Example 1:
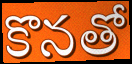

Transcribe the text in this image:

కొనతో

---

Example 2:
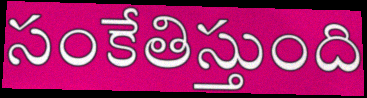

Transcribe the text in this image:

సంకేతిస్తుంది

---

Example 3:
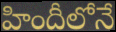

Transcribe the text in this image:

హిందీలోనే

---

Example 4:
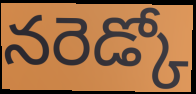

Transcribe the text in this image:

నరెడ్కో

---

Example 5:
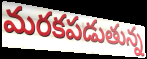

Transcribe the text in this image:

మరకపడుతున్న